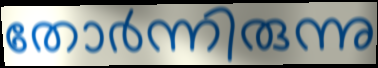
തോർന്നിരുന്നു